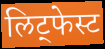
लिट्फेस्ट